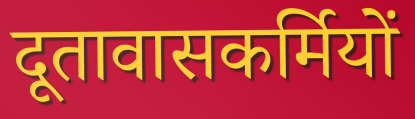
दूतावासकर्मियों